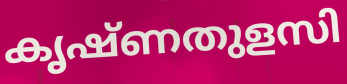
കൃഷ്ണതുളസി